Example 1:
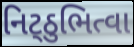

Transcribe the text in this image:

નિટ્ઠુભિત્વા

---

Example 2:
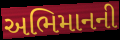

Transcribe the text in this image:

અભિમાનની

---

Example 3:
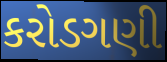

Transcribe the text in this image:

કરોડગણી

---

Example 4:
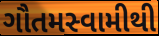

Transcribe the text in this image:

ગૌતમસ્વામીથી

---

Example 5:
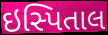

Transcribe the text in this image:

ઇસ્પિતાલ